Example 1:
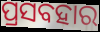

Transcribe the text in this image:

ପ୍ରସବହାର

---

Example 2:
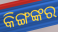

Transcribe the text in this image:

କିଙ୍ଗଙ୍କର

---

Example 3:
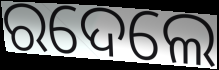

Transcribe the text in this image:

ରଦେଲେ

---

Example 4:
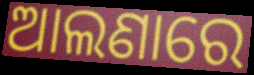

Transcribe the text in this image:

ଆଲଣାରେ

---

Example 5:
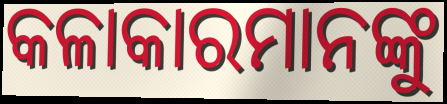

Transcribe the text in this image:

କଳାକାରମାନଙ୍କୁ